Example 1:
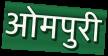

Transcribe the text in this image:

ओमपुरी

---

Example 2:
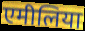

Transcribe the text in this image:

एमीलिया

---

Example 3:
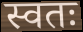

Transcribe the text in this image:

स्वतः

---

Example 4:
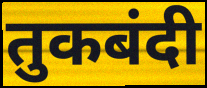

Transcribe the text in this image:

तुकबंदी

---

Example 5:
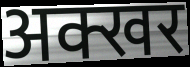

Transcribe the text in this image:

अक्खर